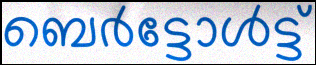
ബെർട്ടോൾട്ട്